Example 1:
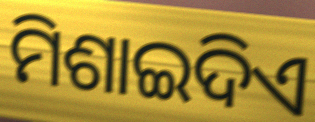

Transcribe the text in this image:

ମିଶାଇଦିଏ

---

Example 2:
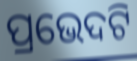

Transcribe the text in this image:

ପ୍ରଭେଦଟି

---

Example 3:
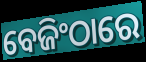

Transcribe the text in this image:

ବେଜିଂଠାରେ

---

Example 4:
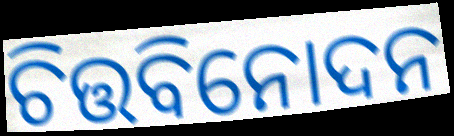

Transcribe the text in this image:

ଚିତ୍ତବିନୋଦନ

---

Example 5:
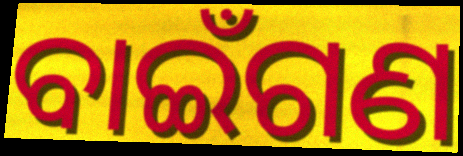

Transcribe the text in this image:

ବାଇଁଗଣ